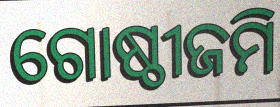
ଗୋଷ୍ଠୀଜମି